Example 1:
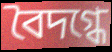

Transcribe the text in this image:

বৈদগ্ধে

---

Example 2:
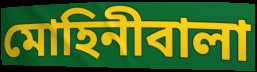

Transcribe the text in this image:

মোহিনীবালা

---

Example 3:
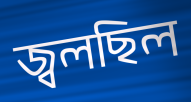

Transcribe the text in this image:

জ্বলছিল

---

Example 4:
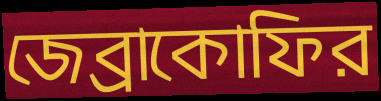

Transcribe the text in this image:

জেব্রাকোফির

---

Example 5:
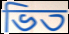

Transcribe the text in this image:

ভিত